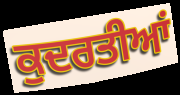
ਕੁਦਰਤੀਆਂ